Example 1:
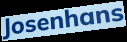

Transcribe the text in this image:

Josenhans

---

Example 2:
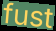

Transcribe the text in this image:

fust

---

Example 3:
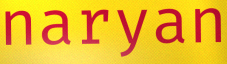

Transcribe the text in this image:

naryan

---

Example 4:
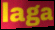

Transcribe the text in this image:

laga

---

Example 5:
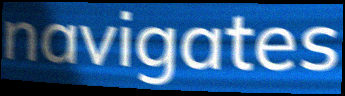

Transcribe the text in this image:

navigates